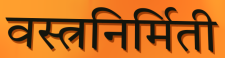
वस्त्रनिर्मिती